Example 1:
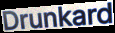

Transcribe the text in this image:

Drunkard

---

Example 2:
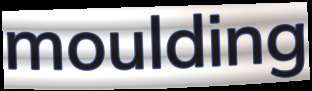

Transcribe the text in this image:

moulding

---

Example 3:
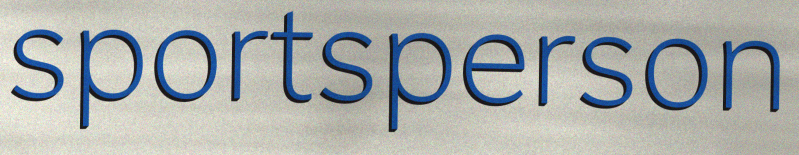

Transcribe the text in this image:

sportsperson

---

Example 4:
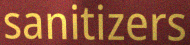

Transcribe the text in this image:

sanitizers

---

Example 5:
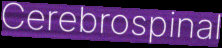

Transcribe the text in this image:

Cerebrospinal